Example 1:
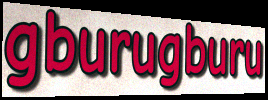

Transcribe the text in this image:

gburugburu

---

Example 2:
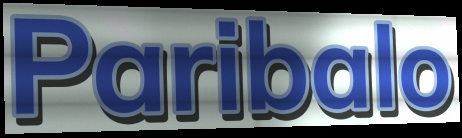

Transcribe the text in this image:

Paribalo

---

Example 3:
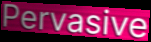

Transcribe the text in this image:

Pervasive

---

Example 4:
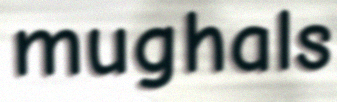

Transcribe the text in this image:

mughals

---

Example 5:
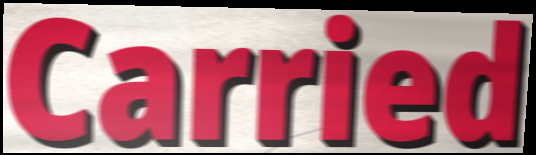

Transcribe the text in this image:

Carried